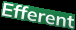
Efferent